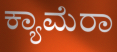
ಕ್ಯಾಮೆರಾ